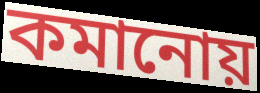
কমানোয়